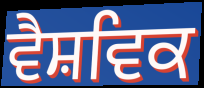
ਵੈਸ਼ਵਿਕ